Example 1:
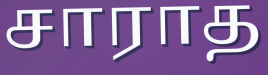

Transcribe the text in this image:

சாராத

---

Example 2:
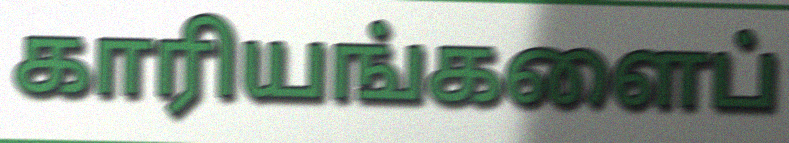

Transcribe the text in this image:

காரியங்களைப்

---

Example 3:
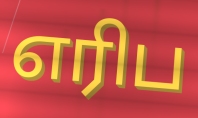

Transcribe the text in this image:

எரிப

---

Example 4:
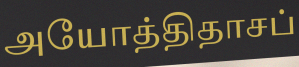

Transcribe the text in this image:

அயோத்திதாசப்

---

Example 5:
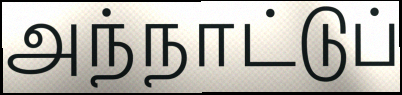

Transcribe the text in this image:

அந்நாட்டுப்